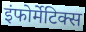
इंफोर्मेटिक्स